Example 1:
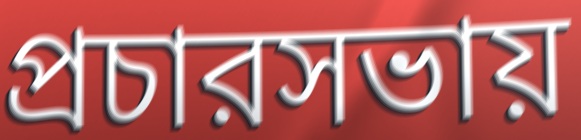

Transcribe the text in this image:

প্রচারসভায়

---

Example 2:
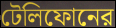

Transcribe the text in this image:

টেলিফোনের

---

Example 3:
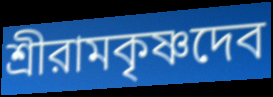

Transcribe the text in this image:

শ্রীরামকৃষ্ণদেব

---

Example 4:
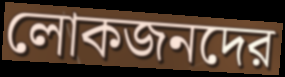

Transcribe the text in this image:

লোকজনদের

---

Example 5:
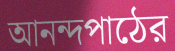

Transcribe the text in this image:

আনন্দপাঠের